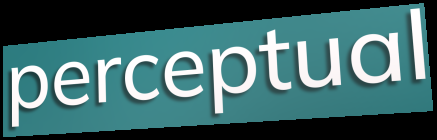
perceptual